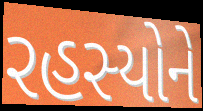
રહસ્યોને